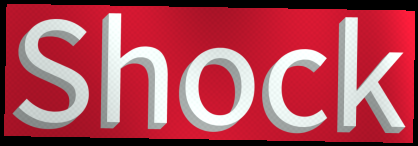
Shock